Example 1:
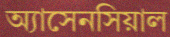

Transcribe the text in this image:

অ্যাসেনসিয়াল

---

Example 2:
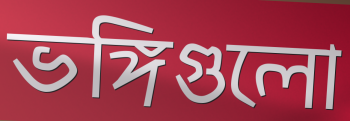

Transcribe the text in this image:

ভঙ্গিগুলো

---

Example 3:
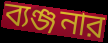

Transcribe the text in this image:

ব্যঞ্জনার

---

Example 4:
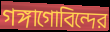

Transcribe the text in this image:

গঙ্গাগোবিন্দের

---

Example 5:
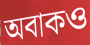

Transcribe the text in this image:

অবাকও